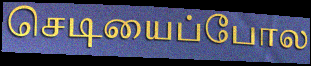
செடியைப்போல